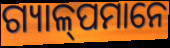
ଗ୍ୟାଳ୍‍ପମାନେ